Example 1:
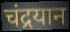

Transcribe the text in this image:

चंद्रयान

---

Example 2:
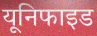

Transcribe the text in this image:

यूनिफाइड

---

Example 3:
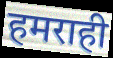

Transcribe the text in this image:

हमराही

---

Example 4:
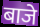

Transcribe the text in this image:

बाजे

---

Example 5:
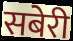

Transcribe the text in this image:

सबेरी